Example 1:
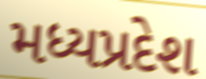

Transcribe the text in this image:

મધ્યપ્રદેશ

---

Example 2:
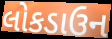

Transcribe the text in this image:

લોકડાઉન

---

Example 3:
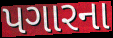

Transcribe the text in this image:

પગારના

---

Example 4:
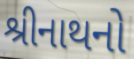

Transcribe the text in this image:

શ્રીનાથનો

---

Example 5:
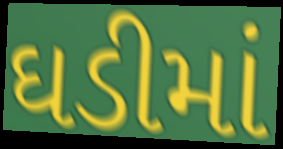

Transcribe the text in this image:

ઘડીમાં